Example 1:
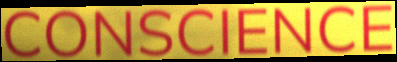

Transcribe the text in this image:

CONSCIENCE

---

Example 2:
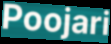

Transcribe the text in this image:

Poojari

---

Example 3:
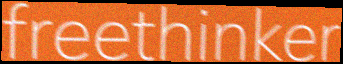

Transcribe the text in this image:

freethinker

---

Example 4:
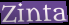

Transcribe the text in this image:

Zinta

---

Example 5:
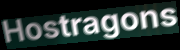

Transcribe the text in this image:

Hostragons